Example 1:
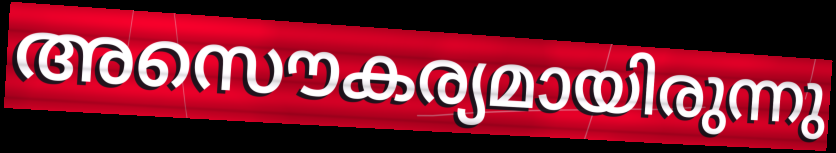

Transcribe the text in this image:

അസൌകര്യമായിരുന്നു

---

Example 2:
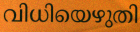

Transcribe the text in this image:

വിധിയെഴുതി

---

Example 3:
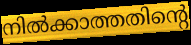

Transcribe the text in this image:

നിൽക്കാത്തതിന്റെ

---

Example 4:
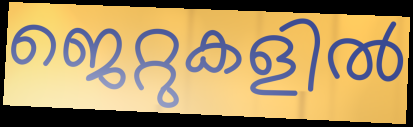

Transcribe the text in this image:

ജെറ്റുകളിൽ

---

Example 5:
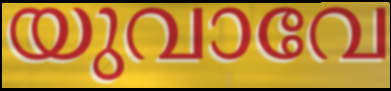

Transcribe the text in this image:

യുവാവേ